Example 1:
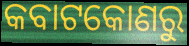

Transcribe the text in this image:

କବାଟକୋଣରୁ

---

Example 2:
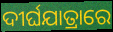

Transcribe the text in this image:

ଦୀର୍ଘଯାତ୍ରାରେ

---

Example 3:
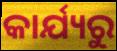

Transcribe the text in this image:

କାର୍ଯ୍ୟରୁ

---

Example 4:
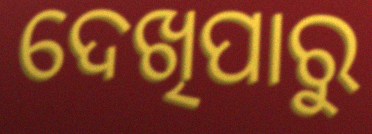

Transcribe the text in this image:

ଦେଖିପାରୁ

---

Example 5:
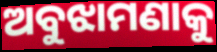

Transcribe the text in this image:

ଅବୁଝାମଣାକୁ